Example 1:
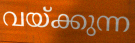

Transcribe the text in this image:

വയ്ക്കുന്ന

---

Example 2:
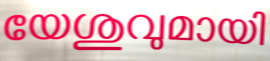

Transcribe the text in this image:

യേശുവുമായി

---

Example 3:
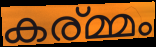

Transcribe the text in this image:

കര്മ്മം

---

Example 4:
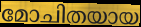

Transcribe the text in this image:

മോചിതയായ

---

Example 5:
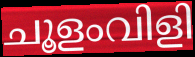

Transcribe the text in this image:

ചൂളംവിളി